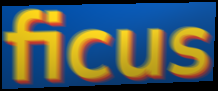
ficus